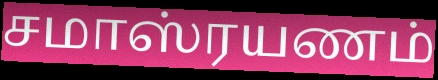
சமாஸ்ரயணம்